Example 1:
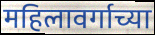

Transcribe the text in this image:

महिलावर्गाच्या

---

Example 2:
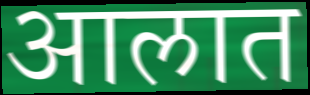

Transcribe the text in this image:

आलात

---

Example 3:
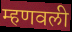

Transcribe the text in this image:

म्हणवली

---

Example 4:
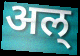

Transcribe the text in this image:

अल्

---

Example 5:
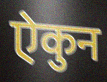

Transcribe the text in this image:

ऐकुन